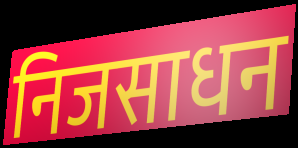
निजसाधन